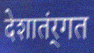
देशातंर्गत